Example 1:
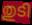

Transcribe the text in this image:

തുടി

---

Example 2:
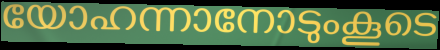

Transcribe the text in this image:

യോഹന്നാനോടുംകൂടെ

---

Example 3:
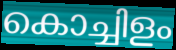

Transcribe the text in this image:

കൊച്ചിളം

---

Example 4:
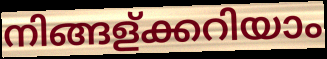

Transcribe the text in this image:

നിങ്ങള്ക്കറിയാം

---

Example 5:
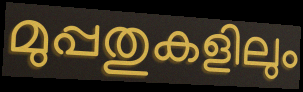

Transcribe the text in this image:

മുപ്പതുകളിലും